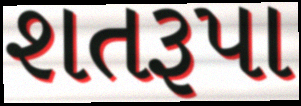
શતરૂપા